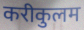
करीकुलम